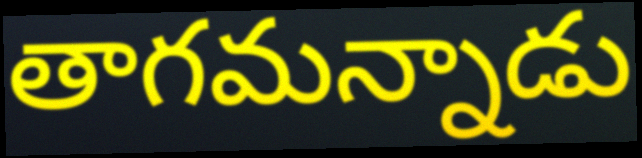
తాగమన్నాడు